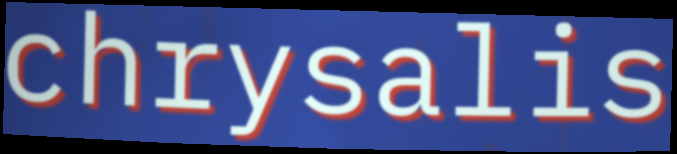
chrysalis